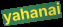
yahanai